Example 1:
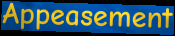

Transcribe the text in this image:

Appeasement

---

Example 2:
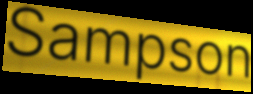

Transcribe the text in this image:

Sampson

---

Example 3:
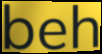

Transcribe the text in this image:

beh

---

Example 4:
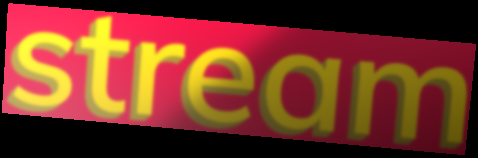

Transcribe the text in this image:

stream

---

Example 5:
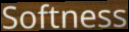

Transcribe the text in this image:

Softness